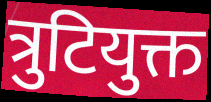
त्रुटियुक्त